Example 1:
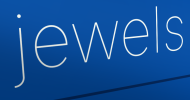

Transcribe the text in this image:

jewels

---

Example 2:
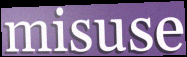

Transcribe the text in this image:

misuse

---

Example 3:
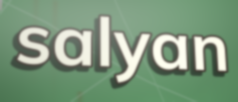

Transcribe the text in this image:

salyan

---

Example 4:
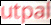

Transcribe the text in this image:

utpal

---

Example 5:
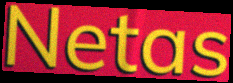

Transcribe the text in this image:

Netas